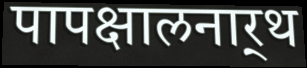
पापक्षालनार्थ